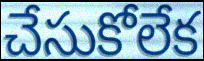
చేసుకోలేక